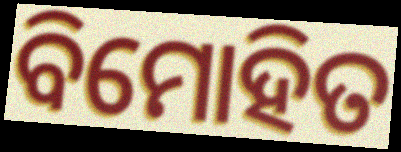
ବିମୋହିତ